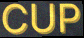
CUP